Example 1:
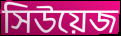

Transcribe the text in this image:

সিউয়েজ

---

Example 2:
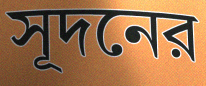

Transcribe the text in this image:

সূদনের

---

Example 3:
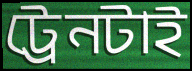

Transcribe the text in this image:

ট্রেনটাই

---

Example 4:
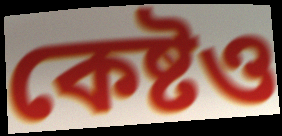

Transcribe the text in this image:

কেষ্টও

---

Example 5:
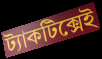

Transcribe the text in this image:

ট্যাকটিক্সেই